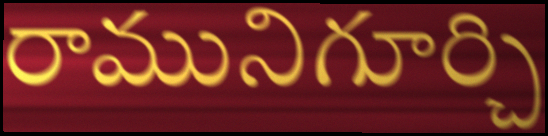
రామునిగూర్చి